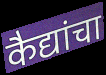
कैद्यांचा